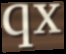
qx